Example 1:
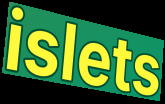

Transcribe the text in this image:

islets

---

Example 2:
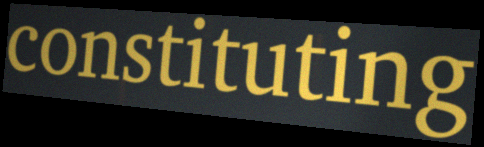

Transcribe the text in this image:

constituting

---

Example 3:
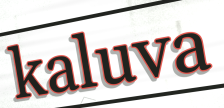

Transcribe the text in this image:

kaluva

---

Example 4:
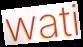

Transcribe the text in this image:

wati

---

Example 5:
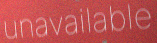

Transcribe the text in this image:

unavailable